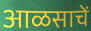
आळसाचें